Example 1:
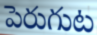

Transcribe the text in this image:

పెరుగుట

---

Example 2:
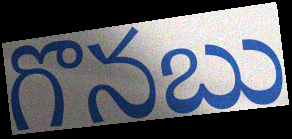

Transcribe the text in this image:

గొనబు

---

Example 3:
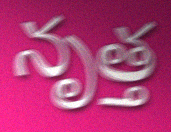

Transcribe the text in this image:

నృత్త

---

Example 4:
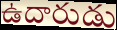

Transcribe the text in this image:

ఉదారుడు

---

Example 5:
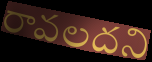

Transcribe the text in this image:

రావలదని